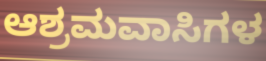
ಆಶ್ರಮವಾಸಿಗಳ